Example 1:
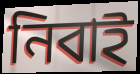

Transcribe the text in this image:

নিবাই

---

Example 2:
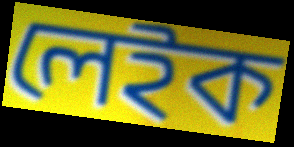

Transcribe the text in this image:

লেইক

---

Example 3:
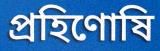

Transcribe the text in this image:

প্রহিণোষি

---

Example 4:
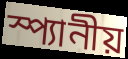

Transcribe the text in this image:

স্প্যানীয়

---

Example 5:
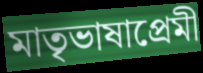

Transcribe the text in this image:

মাতৃভাষাপ্রেমী